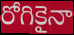
రోగికైనా